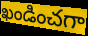
ఖండించగా